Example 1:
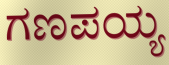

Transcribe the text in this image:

ಗಣಪಯ್ಯ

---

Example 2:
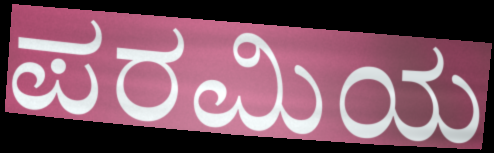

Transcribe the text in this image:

ಪರಮಿಯ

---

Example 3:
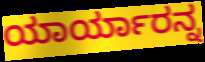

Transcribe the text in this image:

ಯಾರ್ಯಾರನ್ನ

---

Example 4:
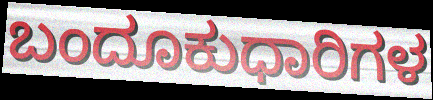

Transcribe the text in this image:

ಬಂದೂಕುಧಾರಿಗಳ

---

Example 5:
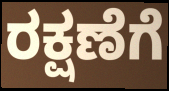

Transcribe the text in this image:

ರಕ್ಷಣೆಗೆ